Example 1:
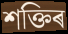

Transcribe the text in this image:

শক্তিৰ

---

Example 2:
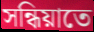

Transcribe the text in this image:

সন্ধিয়াতে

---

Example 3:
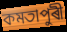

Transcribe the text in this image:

কমতাপুৰী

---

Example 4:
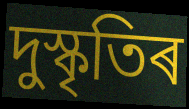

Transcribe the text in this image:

দুস্কৃতিৰ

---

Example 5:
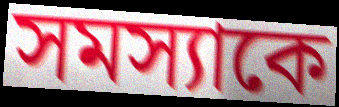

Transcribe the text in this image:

সমস্যাকে